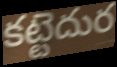
కట్టెదుర